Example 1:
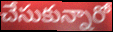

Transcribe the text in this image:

చేసుకున్నారో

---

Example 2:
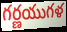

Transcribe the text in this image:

గర్ణయుగళ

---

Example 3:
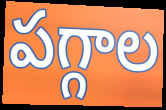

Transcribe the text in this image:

పగ్గాల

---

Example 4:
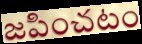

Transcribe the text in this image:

జపించటం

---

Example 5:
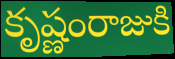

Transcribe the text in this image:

కృష్ణంరాజుకి